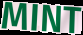
MINT